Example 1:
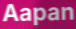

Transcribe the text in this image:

Aapan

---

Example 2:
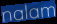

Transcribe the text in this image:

nalam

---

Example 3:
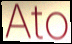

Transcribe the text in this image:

Ato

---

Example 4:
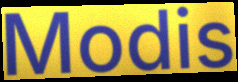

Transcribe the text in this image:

Modis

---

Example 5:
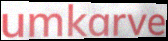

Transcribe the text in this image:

umkarve